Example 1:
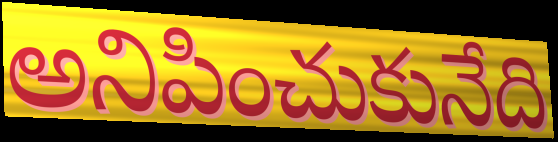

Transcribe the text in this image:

అనిపించుకునేది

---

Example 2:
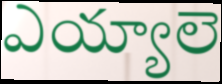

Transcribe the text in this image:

ఎయ్యాలె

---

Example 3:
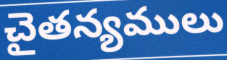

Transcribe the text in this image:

చైతన్యములు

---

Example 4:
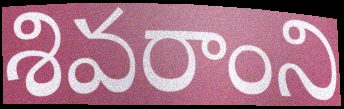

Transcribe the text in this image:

శివరాంని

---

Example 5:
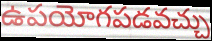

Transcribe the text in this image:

ఉపయోగపడవచ్చు